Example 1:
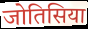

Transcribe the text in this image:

जोतिसिया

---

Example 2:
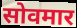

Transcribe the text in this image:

सोवमार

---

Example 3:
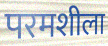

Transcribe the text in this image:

परमशीला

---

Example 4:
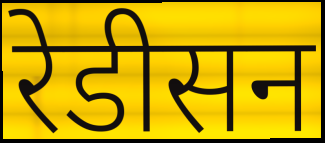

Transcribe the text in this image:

रेडीसन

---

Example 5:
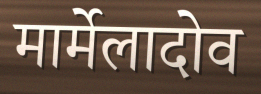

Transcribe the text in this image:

मार्मेलादोव